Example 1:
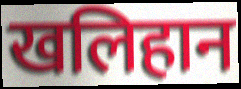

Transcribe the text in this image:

खलिहान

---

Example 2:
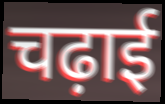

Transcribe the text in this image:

चढ़ाई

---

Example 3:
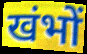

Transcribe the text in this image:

खंभों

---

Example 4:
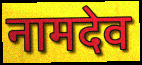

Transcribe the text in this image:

नामदेव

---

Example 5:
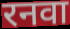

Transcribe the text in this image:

रनवा